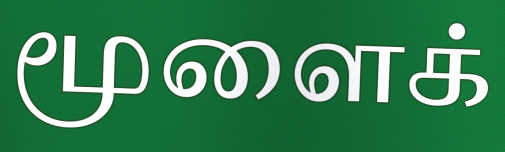
மூளைக்